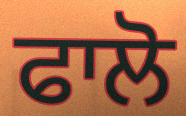
ਫਾਲੋ